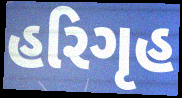
હરિગૃહ